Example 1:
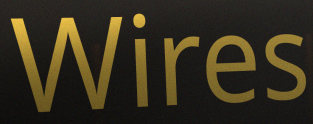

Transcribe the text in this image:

Wires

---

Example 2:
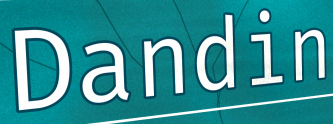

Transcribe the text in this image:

Dandin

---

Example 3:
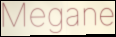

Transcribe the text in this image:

Megane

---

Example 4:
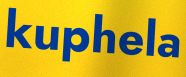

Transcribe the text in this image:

kuphela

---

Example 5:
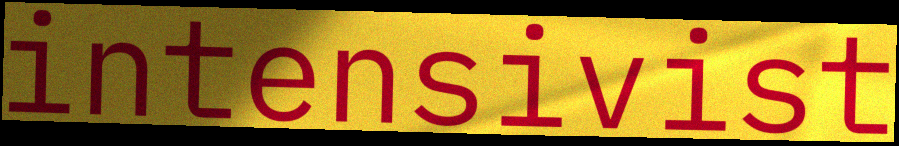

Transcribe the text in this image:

intensivist